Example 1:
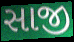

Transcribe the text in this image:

સાજી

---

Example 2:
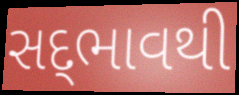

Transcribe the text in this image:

સદ્‍ભાવથી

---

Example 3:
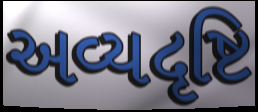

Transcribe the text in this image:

અવ્યદૃષ્ટિ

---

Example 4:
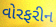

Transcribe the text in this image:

વોરફરીન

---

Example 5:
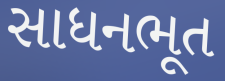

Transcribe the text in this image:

સાધનભૂત